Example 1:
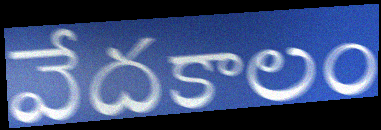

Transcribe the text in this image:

వేదకాలం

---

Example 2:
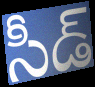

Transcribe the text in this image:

సీడ్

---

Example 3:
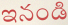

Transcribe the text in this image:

ఇనండి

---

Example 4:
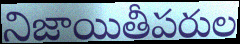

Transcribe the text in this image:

నిజాయితీపరుల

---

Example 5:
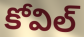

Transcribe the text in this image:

కోవిల్